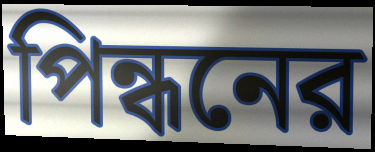
পিন্ধনের